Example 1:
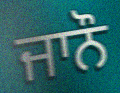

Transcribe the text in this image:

ਜਾਨੌ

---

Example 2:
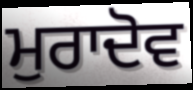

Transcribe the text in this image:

ਮੁਰਾਦੋਵ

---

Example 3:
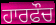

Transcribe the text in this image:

ਹਾਰਫੌਚ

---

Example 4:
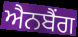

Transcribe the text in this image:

ਐਨਬੈਂਗ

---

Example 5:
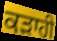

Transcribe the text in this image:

ਕੜਾਹੀ